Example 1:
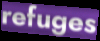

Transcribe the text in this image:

refuges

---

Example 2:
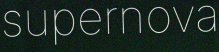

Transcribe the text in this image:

supernova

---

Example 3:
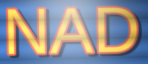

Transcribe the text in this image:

NAD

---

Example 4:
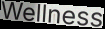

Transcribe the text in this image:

Wellness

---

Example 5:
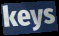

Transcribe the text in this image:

keys